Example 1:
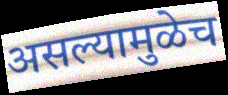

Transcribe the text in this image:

असल्यामुळेच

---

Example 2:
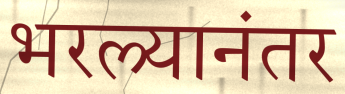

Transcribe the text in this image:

भरल्यानंतर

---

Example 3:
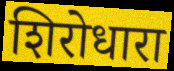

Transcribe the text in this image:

शिरोधारा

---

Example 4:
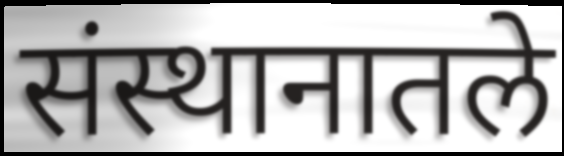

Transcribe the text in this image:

संस्थानातले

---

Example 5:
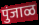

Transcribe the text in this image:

पुंजाळ